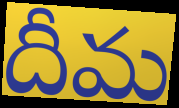
దీమ